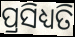
ପ୍ରସିଧ୍ୟତି